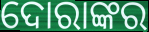
ଦୋରାଙ୍କର